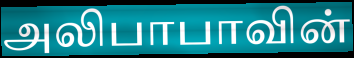
அலிபாபாவின்